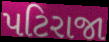
પટિરાજા